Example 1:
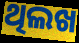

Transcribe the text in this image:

ଥିଲଖ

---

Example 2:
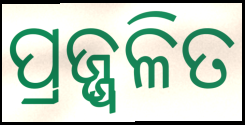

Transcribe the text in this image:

ପ୍ରଜ୍ଜ୍ବଳିତ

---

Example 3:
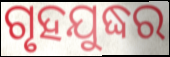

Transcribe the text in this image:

ଗୃହଯୁଦ୍ଧର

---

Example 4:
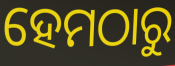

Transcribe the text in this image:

ହେମଠାରୁ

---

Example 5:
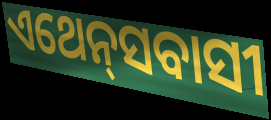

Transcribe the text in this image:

ଏଥେନ୍‌ସବାସୀ